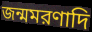
জন্মমরণাদি